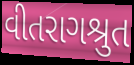
વીતરાગશ્રુત